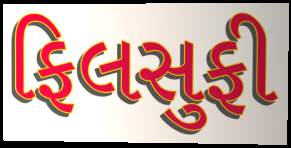
ફિલસુફી